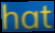
hat